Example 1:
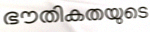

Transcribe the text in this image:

ഭൗതികതയുടെ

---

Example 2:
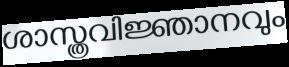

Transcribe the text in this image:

ശാസ്ത്രവിജ്ഞാനവും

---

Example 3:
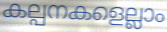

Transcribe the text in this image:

കല്പനകളെല്ലാം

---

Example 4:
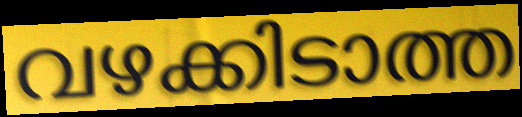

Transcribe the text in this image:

വഴക്കിടാത്ത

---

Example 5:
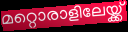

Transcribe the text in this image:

മറ്റൊരാളിലേയ്ക്ക്